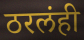
ठरलंही